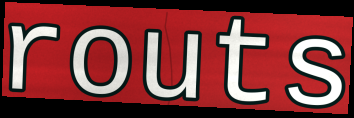
routs